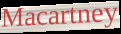
Macartney